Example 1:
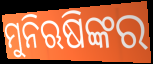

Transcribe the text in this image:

ମୁନିଋଷିଙ୍କର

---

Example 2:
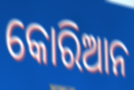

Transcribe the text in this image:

କୋରିଆନ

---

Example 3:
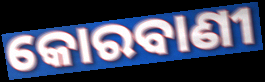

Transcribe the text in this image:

କୋରବାଣୀ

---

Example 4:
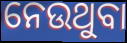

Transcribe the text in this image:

ନେଉଥୁବା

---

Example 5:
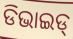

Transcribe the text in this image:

ଡିଭାଇଡ୍